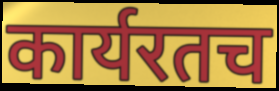
कार्यरतच